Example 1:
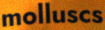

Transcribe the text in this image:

molluscs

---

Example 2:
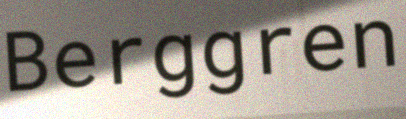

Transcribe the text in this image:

Berggren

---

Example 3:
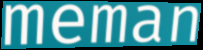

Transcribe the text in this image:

meman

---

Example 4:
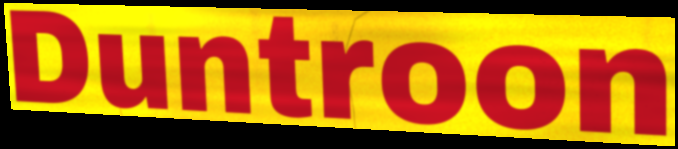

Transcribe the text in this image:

Duntroon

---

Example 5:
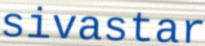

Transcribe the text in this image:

sivastar